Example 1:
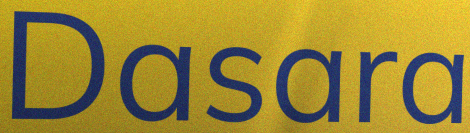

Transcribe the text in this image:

Dasara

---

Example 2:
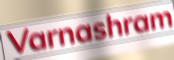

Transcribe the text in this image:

Varnashram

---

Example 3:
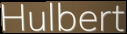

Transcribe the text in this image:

Hulbert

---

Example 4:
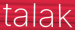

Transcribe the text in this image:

talak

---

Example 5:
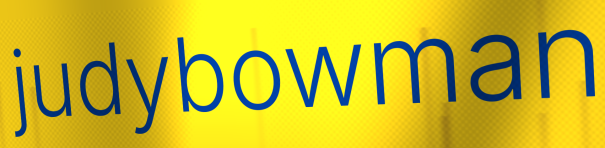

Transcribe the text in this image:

judybowman